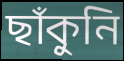
ছাঁকুনি